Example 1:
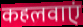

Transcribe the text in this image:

कहलवाएं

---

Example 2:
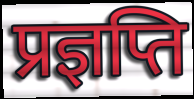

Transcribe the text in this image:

प्रज्ञप्ति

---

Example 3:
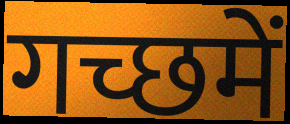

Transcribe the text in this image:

गच्छमें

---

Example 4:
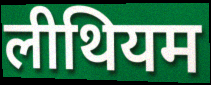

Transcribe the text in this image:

लीथियम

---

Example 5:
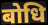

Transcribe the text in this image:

बोधि